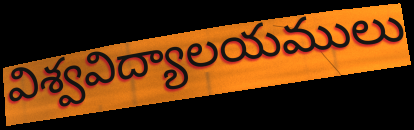
విశ్వవిద్యాలయములు